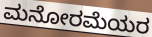
ಮನೋರಮೆಯರ